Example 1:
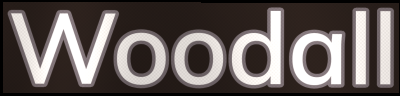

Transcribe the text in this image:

Woodall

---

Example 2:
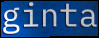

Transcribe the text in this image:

ginta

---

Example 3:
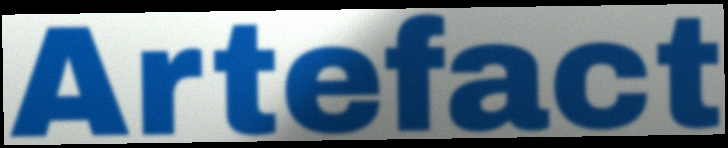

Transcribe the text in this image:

Artefact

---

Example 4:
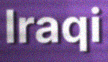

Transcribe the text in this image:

Iraqi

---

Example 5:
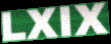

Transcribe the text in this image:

LXIX